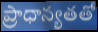
ప్రాధాన్యతతో